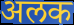
अलक